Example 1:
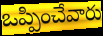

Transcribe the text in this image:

ఒప్పించేవారు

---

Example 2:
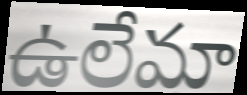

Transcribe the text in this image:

ఉలేమా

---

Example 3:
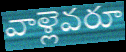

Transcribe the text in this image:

వాళ్లెవరూ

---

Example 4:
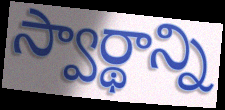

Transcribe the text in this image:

స్వార్థాన్ని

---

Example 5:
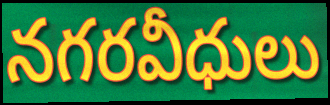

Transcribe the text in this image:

నగరవీధులు